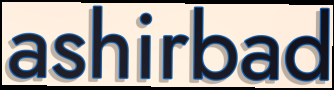
ashirbad